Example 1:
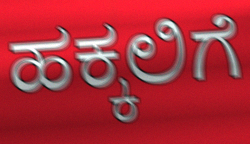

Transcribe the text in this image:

ಹಕ್ಕಲಿಗೆ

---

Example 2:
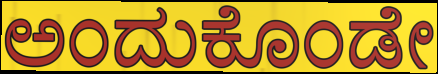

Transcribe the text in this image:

ಅಂದುಕೊಂಡೇ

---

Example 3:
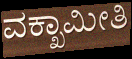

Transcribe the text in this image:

ವಕ್ಖಾಮೀತಿ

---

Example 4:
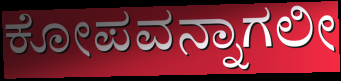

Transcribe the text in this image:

ಕೋಪವನ್ನಾಗಲೀ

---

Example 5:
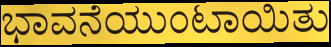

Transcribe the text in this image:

ಭಾವನೆಯುಂಟಾಯಿತು